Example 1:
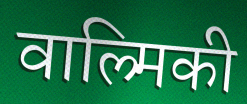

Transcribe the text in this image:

वाल्मिकी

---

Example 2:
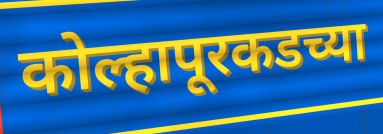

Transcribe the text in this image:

कोल्हापूरकडच्या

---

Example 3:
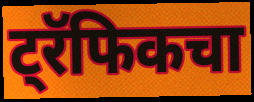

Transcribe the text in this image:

ट्रॅफिकचा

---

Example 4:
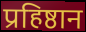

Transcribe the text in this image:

प्रहिष्ठान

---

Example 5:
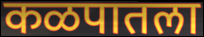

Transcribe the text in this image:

कळपातला